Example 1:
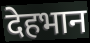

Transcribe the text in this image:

देहभान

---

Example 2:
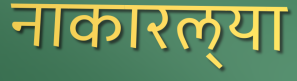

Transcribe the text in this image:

नाकारल्या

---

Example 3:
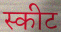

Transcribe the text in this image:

स्कीट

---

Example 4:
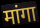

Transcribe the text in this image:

मांगा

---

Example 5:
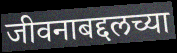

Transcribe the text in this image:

जीवनाबद्दलच्या